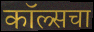
कॉल्सचा